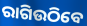
ରାଗିଉଠିବେ